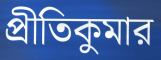
প্রীতিকুমার